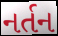
નર્તન